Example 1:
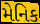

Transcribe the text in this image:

મેનિક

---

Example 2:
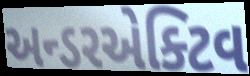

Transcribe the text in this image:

અન્ડરએક્ટિવ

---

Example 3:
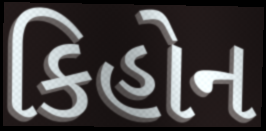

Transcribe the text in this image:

કિહોન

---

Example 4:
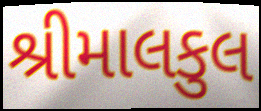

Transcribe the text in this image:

શ્રીમાલકુલ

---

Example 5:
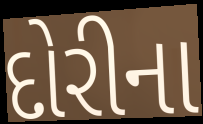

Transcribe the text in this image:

દોરીના